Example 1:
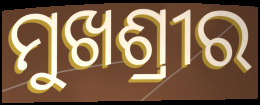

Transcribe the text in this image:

ମୁଖଶ୍ରୀର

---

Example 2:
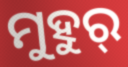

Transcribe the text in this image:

ମୁହୁର୍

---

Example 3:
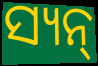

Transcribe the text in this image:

ସ୍ୟନ୍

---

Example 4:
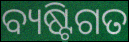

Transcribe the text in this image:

ବ୍ୟଷ୍ଟିଗତ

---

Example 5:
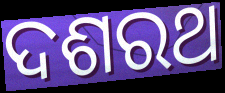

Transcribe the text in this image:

ଦଶରଥ